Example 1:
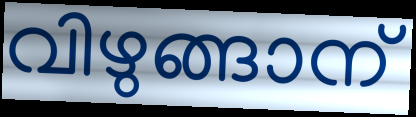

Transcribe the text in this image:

വിഴുങ്ങാന്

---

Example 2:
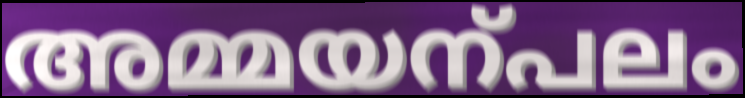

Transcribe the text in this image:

അമ്മയന്പലം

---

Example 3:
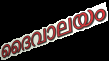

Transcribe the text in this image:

ദൈവാലയം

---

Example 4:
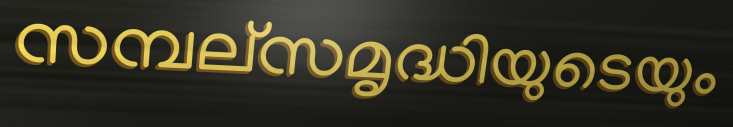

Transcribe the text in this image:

സമ്പല്സമൃദ്ധിയുടെയും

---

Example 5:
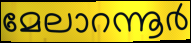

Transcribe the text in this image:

മേലാറന്നൂർ